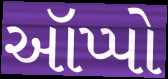
ઑપ્પો